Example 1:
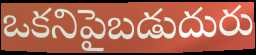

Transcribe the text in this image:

ఒకనిపైబడుదురు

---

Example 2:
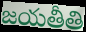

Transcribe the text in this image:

జయతీతి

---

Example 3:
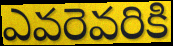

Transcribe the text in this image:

ఎవరెవరికి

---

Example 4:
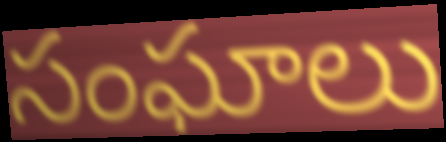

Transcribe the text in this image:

సంఘాలు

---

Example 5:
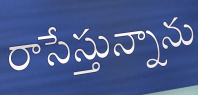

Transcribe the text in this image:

రాసేస్తున్నాను